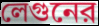
লেগুনের